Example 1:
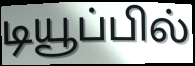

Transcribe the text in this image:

டியூப்பில்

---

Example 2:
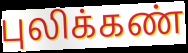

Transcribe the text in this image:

புலிக்கண்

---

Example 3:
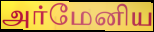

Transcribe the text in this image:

அர்மேனிய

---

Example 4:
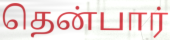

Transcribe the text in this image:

தென்பார்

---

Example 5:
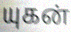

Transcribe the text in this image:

யுகன்